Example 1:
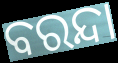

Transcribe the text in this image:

ବରନ୍ଦା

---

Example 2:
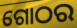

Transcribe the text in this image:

ଗୋଠର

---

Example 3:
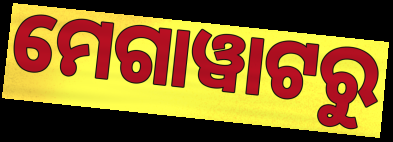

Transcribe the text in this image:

ମେଗାୱାଟରୁ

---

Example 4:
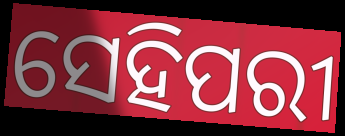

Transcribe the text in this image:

ସେହିପରୀ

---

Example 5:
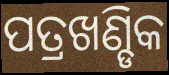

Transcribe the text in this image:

ପତ୍ରଖଣ୍ଡିକ